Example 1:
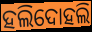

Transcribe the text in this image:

ହଲିଦୋହଲି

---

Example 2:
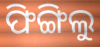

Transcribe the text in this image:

ଫିଙ୍ଗିଲୁ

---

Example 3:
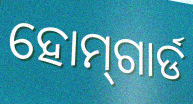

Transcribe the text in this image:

ହୋମ୍‌ଗାର୍ଡ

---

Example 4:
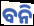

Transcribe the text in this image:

ବନି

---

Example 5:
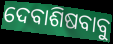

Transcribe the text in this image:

ଦେବାଶିଷବାବୁ